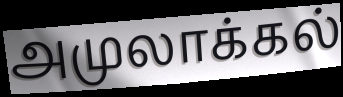
அமுலாக்கல்